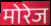
मोरेज